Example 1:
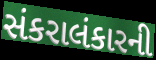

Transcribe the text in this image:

સંકરાલંકારની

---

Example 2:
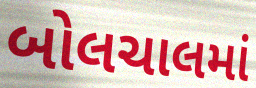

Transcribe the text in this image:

બોલચાલમાં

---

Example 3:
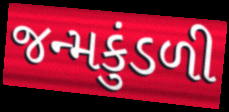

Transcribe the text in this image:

જન્મકુંડળી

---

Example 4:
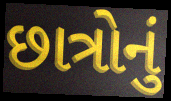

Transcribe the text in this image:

છાત્રોનું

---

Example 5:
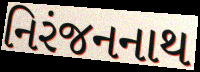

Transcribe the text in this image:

નિરંજનનાથ